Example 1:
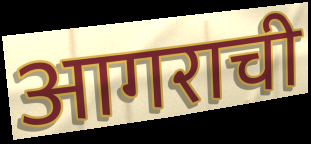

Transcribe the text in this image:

आगराची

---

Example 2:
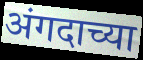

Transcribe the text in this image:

अंगदाच्या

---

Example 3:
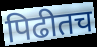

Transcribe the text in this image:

पिढीतच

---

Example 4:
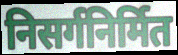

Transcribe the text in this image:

निसर्गनिर्मित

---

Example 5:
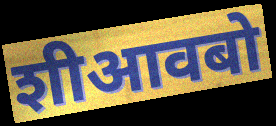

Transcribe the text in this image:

शीआवबो